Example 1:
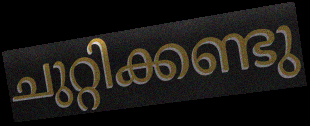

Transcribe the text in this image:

ചുറ്റിക്കണ്ടു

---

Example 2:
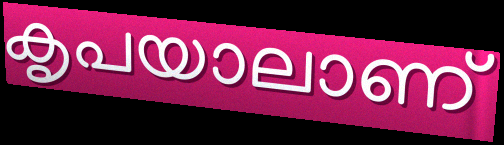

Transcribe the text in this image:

കൃപയാലാണ്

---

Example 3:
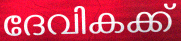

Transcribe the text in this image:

ദേവികക്ക്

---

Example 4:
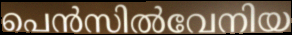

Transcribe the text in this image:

പെൻസിൽവേനിയ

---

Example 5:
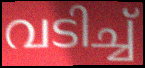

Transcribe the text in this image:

വടിച്ച്